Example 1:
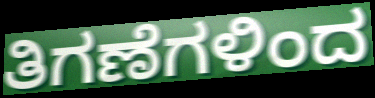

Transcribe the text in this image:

ತಿಗಣೆಗಳಿಂದ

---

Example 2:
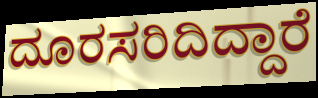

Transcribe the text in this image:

ದೂರಸರಿದಿದ್ದಾರೆ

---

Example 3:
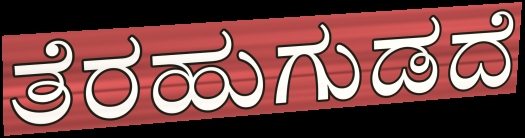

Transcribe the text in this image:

ತೆರಹುಗುಡದೆ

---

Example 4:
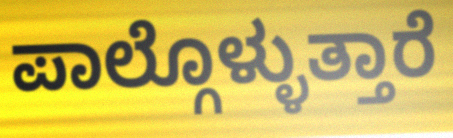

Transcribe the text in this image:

ಪಾಲ್ಗೊಳ್ಳುತ್ತಾರೆ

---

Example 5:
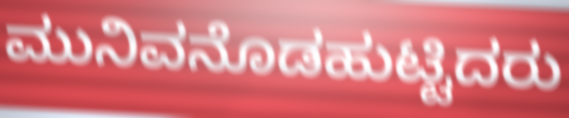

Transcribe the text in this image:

ಮುನಿವನೊಡಹುಟ್ಟಿದರು